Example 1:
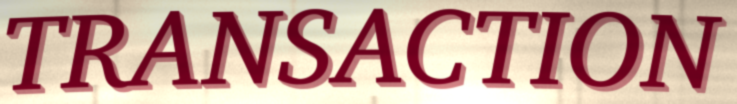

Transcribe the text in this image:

TRANSACTION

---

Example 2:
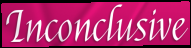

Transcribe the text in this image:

Inconclusive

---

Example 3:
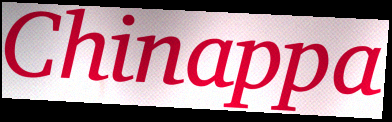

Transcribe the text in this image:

Chinappa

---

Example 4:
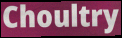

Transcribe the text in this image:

Choultry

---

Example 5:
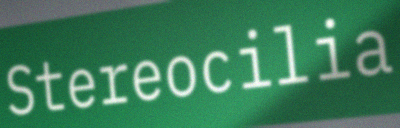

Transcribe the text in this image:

Stereocilia